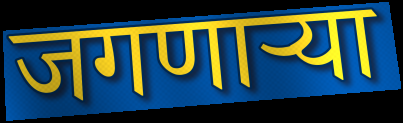
जगणार्‍या